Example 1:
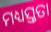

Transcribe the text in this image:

ମଧ୍ୟସ୍ତତା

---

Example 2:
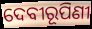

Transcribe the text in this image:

ଦେବୀରୂପିଣୀ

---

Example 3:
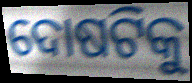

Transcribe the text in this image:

ଦୋଷଟିକୁ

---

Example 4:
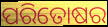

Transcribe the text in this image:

ପରିତୋଷର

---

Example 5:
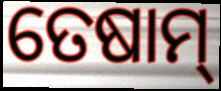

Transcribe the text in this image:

ତେଷାମ୍